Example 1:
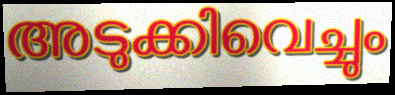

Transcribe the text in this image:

അടുക്കിവെച്ചും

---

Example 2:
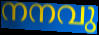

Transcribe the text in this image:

നനവു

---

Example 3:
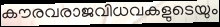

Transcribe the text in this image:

കൗരവരാജവിധവകളുടെയും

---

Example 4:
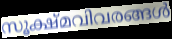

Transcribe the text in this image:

സൂക്ഷ്മവിവരങ്ങൾ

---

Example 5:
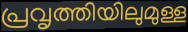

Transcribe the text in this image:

പ്രവൃത്തിയിലുമുള്ള